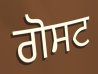
ਗੋਸਟ